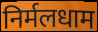
निर्मलधाम